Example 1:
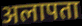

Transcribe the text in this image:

अलापता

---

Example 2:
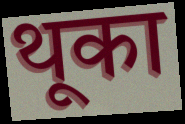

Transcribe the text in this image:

थूका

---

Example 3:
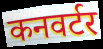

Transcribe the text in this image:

कनवर्टर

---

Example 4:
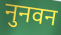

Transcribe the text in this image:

नुनवन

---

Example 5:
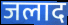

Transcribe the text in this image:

जलाद